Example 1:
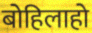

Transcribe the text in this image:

बोहिलाहो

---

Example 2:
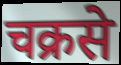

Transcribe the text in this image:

चक्रसे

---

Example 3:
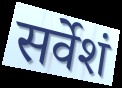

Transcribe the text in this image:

सर्वेशं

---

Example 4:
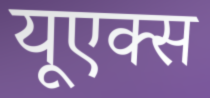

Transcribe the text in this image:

यूएक्स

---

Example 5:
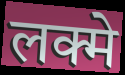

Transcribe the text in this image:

लक्मे